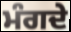
ਮੰਗਦੇ